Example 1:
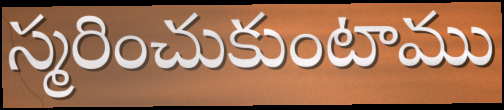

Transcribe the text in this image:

స్మరించుకుంటాము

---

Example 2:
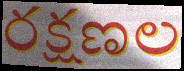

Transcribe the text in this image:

రక్షణల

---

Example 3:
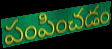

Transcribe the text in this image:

పంపించడం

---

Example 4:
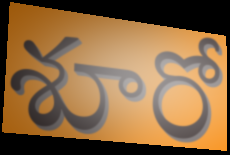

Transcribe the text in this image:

శూరో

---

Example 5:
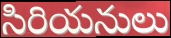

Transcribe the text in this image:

సిరియనులు